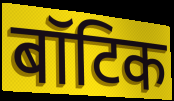
बॉटिक